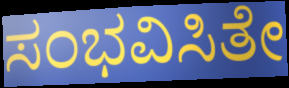
ಸಂಭವಿಸಿತೇ